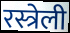
रस्त्रेली